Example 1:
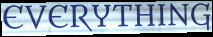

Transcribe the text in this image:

EVERYTHING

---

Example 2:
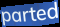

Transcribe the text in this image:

parted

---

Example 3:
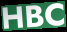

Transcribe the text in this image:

HBC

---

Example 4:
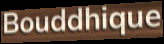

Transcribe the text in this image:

Bouddhique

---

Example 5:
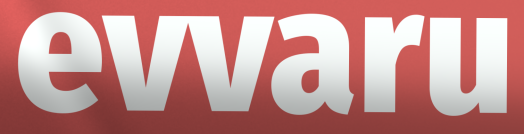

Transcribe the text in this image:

evvaru